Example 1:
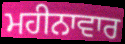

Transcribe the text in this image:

ਮਹੀਨਾਵਾਰ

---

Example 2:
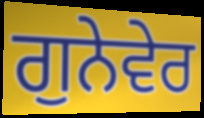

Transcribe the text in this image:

ਗੁਨੇਵੇਰ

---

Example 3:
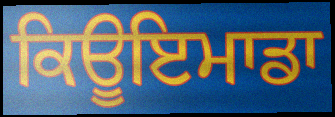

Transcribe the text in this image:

ਕਿਊਇਮਾਡਾ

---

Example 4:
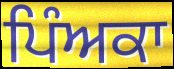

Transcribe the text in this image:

ਪਿੰਅਕਾ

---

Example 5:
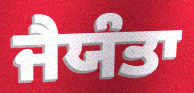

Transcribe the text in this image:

ਜੈਯੰਤਾ